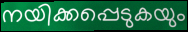
നയിക്കപ്പെടുകയും